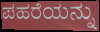
ಪಹರೆಯನ್ನು